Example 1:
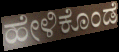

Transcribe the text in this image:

ಹೇಳಿಕೊಂಡೆ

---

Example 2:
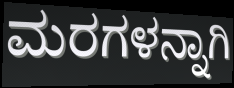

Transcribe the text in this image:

ಮರಗಳನ್ನಾಗಿ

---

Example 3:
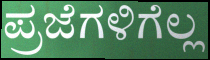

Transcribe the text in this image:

ಪ್ರಜೆಗಳಿಗೆಲ್ಲ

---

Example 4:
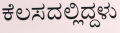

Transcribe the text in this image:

ಕೆಲಸದಲ್ಲಿದ್ದಳು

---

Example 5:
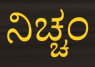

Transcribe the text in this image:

ನಿಚ್ಚಂ